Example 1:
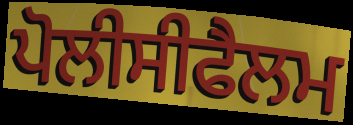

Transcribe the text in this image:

ਪੋਲੀਸੀਫੈਲਮ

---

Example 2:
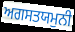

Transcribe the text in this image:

ਅਗਸਤਯਮੁਨੀ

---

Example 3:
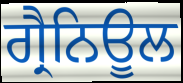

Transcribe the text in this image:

ਗ੍ਰੈਨਿਊਲ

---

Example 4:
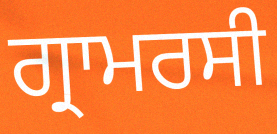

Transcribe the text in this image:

ਗ੍ਰਾਮਰਸੀ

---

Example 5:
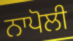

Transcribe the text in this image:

ਨਾਪੋਲੀ